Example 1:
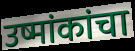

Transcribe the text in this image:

उष्मांकांचा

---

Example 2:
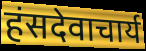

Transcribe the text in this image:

हंसदेवाचार्य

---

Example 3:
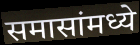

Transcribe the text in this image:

समासांमध्ये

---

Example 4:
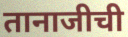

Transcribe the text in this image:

तानाजीची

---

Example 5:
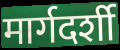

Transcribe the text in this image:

मार्गदर्शी